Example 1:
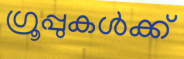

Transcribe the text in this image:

ഗ്രൂപ്പുകൾക്ക്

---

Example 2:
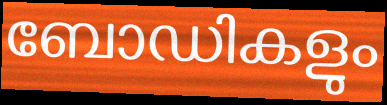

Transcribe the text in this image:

ബോഡികളും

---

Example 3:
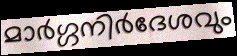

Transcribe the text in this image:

മാർഗ്ഗനിർദേശവും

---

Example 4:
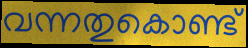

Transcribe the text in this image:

വന്നതുകൊണ്ട്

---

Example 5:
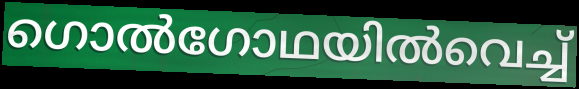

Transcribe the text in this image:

ഗൊൽഗോഥയിൽവെച്ച്